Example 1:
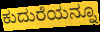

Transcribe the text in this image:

ಕುದುರೆಯನ್ನೂ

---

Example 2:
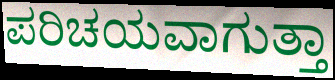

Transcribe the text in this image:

ಪರಿಚಯವಾಗುತ್ತಾ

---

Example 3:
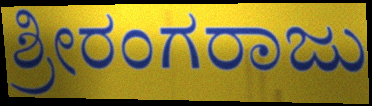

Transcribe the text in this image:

ಶ್ರೀರಂಗರಾಜು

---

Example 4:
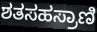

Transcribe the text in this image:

ಶತಸಹಸ್ರಾಣಿ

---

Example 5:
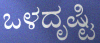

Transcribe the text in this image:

ಒಳದೃಷ್ಟಿ